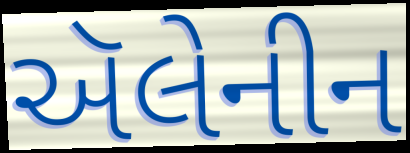
ઍલેનીન